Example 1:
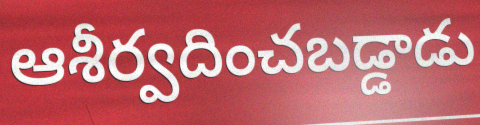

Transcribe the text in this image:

ఆశీర్వదించబడ్డాడు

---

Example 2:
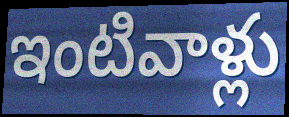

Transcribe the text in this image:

ఇంటివాళ్లు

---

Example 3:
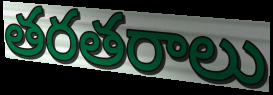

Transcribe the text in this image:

తరతరాలు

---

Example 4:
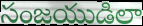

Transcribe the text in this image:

సంజయుడిలా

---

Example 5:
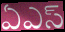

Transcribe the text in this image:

ఏఎస్